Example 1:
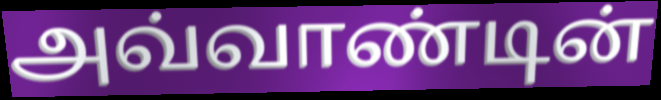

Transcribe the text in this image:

அவ்வாண்டின்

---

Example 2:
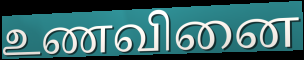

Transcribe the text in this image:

உணவினை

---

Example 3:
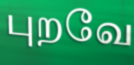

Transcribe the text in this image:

புறவே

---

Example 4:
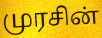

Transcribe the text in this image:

முரசின்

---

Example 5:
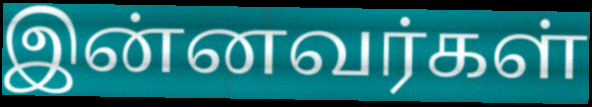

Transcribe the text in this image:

இன்னவர்கள்